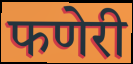
फणेरी